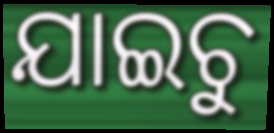
ଯାଇଚୁ